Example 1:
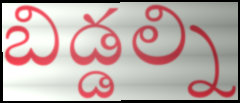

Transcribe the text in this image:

బిడ్డల్ని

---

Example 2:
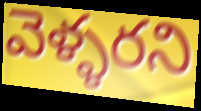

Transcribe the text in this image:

వెళ్ళరని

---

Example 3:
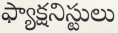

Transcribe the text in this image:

ఫ్యాక్షనిస్టులు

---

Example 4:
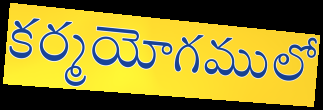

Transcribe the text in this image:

కర్మయోగములో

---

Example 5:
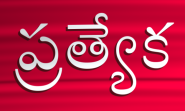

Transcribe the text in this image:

ప్రత్యేక